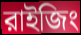
রাইজিং